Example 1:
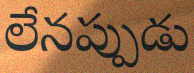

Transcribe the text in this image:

లేనప్పుడు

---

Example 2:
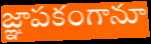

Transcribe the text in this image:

జ్ఞాపకంగానూ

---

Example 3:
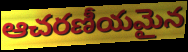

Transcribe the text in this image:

ఆచరణీయమైన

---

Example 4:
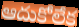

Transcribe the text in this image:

ఆదుకోలేక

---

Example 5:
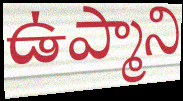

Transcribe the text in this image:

ఉప్మాని